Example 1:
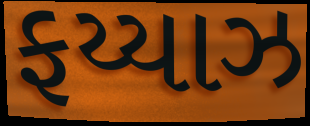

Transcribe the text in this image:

ફય્યાઝ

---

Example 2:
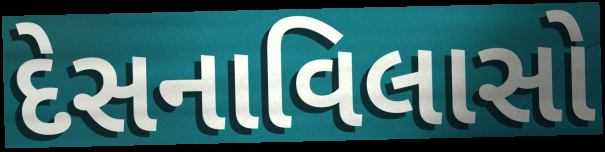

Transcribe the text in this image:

દેસનાવિલાસો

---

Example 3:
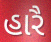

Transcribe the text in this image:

હારૈ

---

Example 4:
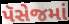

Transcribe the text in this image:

પૅસેજમાં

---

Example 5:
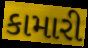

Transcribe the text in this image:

કામારી